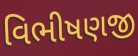
વિભીષણજી